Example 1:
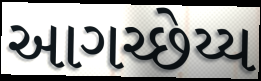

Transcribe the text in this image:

આગચ્છેય્ય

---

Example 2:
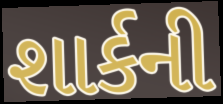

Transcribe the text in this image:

શાર્કની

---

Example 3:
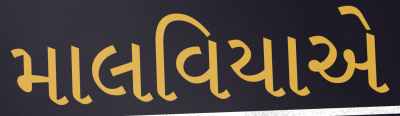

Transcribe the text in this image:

માલવિયાએ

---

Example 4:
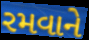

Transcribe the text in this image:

રમવાને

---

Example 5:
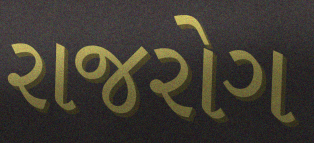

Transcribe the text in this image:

રાજરોગ